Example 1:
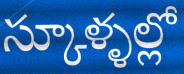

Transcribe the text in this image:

స్కూళ్ళల్లో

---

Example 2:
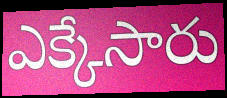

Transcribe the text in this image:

ఎక్కేసారు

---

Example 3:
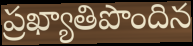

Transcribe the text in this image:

ప్రఖ్యాతిపొందిన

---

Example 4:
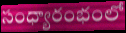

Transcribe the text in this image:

సంధ్యారంభంలో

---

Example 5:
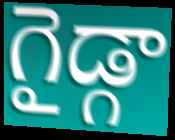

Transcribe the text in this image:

గైడ్గా